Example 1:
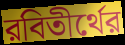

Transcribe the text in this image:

রবিতীর্থের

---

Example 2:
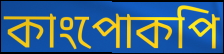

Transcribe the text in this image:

কাংপোকপি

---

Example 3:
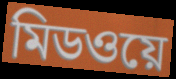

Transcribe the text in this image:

মিডওয়ে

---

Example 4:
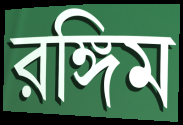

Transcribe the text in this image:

রঙ্গিম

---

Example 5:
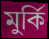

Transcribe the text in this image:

মুর্কি